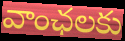
వాంఛలకు